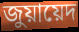
জুয়ায়েদ